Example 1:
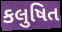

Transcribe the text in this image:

કલુષિત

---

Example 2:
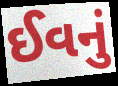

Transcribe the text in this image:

ઈવનું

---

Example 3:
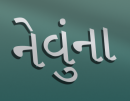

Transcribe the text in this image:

નેવુંના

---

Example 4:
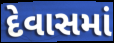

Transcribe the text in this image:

દેવાસમાં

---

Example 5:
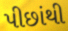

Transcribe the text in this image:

પીછાંથી